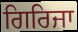
ਗਿਰਿਜਾ